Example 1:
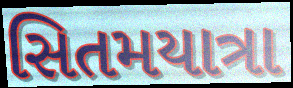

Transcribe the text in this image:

સિતમયાત્રા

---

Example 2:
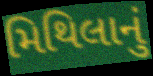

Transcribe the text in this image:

મિથિલાનું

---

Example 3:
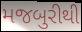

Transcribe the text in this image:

મજબુરીથી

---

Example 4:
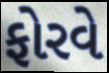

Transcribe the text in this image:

ફોરવે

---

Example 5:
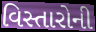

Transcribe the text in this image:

વિસ્તારોની